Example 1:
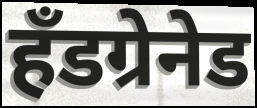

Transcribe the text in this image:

हँडग्रेनेड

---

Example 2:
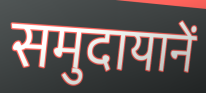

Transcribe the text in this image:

समुदायानें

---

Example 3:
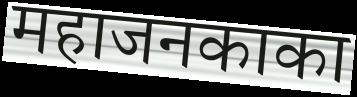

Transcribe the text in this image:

महाजनकाका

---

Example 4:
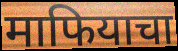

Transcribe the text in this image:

माफियाचा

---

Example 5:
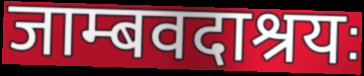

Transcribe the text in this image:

जाम्बवदाश्रयः